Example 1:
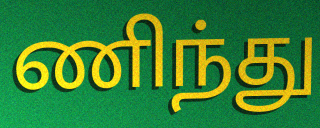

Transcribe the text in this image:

ணிந்து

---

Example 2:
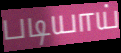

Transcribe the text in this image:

படியாய்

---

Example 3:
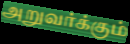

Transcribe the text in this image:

அறுவர்க்கும்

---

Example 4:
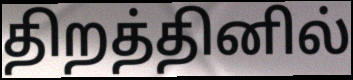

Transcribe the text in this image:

திறத்தினில்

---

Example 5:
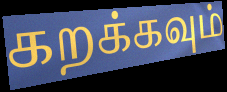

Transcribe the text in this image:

கறக்கவும்